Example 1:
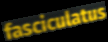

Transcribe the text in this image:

fasciculatus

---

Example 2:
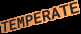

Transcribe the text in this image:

TEMPERATE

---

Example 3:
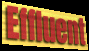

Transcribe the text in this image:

Effluent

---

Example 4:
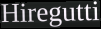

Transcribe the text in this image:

Hiregutti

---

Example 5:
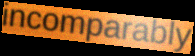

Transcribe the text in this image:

incomparably